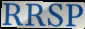
RRSP